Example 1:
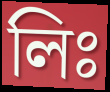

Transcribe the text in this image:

লিঃ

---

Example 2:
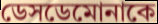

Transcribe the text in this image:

ডেসডেমোনাকে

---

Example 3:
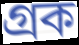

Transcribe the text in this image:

গ্রক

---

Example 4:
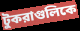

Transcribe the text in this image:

টুকরাগুলিকে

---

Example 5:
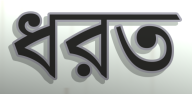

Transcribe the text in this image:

ধরত